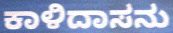
ಕಾಳಿದಾಸನು